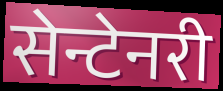
सेन्टेनरी